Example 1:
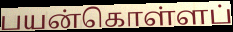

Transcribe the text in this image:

பயன்கொள்ளப்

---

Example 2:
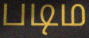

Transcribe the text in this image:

படிம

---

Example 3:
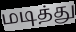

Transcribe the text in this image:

மடித்து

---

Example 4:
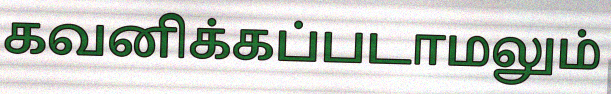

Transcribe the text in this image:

கவனிக்கப்படாமலும்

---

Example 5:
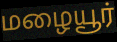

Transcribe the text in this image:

மழையூர்